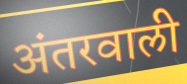
अंतरवाली